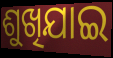
ଶୁଖିଯାଇ